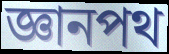
জ্ঞানপথ